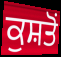
ਕੁਸ਼ਤੋਂ